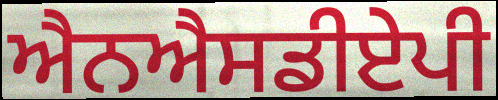
ਐਨਐਸਡੀਏਪੀ